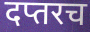
दप्तरच